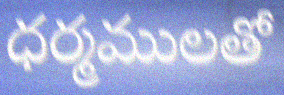
ధర్మములతో